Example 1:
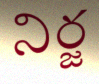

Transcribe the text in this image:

నిర్జ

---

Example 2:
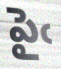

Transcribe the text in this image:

పైఁ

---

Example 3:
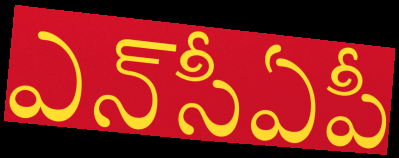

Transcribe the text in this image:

ఎన్‌సీఏపీ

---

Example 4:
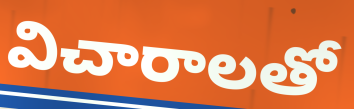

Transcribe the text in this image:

విచారాలతో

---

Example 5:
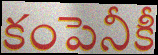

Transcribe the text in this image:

కంపెనీకీ